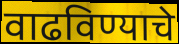
वाढविण्याचे